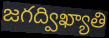
జగద్విఖ్యాతి